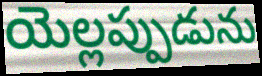
యెల్లప్పుడును